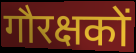
गौरक्षकों